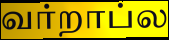
வர்றாப்ல